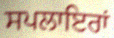
ਸਪਲਾਇਰਾਂ